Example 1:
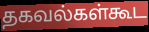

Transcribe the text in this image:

தகவல்கள்கூட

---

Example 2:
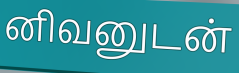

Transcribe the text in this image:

னிவனுடன்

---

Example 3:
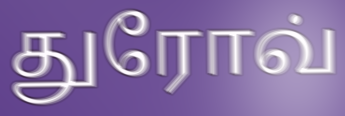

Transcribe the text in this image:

துரோவ்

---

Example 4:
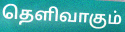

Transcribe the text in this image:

தெளிவாகும்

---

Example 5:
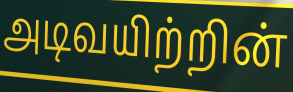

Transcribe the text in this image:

அடிவயிற்றின்